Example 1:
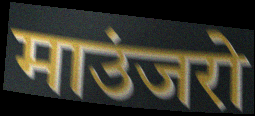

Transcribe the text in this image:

माउंजरो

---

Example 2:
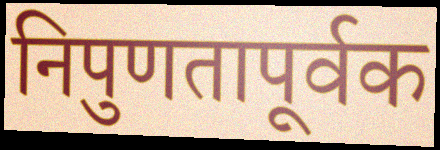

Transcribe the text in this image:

निपुणतापूर्वक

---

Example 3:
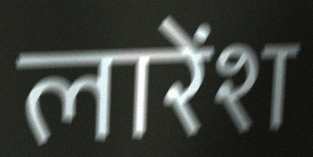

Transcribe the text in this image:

लारेंश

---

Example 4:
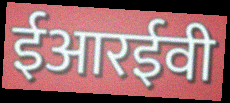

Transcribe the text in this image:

ईआरईवी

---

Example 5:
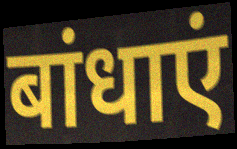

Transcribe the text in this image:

बांधाएं